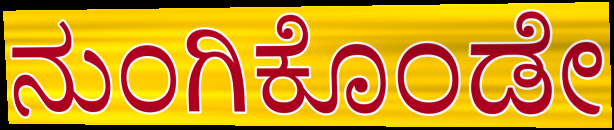
ನುಂಗಿಕೊಂಡೇ